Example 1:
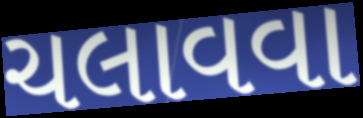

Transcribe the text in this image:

ચલાવવા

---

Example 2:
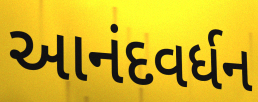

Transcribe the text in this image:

આનંદવર્ધન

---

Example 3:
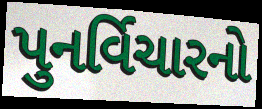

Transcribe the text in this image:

પુનર્વિચારનો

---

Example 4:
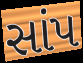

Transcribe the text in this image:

સાંપ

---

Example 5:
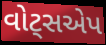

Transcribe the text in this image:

વોટ્સએપ